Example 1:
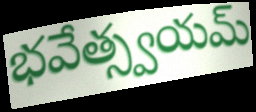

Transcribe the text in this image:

భవేత్స్వయమ్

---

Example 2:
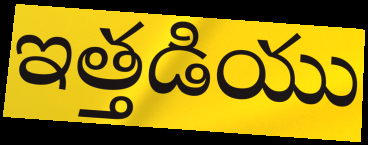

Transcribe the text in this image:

ఇత్తడియు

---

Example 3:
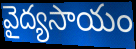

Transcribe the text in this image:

వైద్యసాయం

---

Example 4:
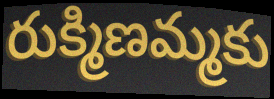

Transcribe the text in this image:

రుక్మిణమ్మకు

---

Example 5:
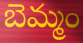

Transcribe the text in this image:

బెమ్మం